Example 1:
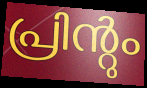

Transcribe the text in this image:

പ്രിന്റും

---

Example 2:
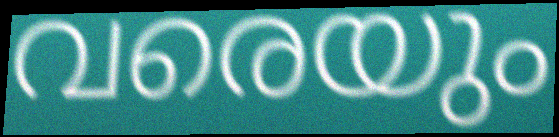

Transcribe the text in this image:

വരെയും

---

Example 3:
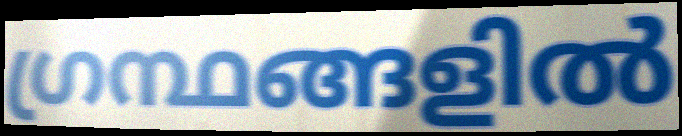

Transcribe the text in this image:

ഗ്രന്ഥങ്ങളിൽ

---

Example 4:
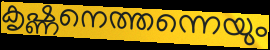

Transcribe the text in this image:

കൃഷ്ണനെത്തന്നെയും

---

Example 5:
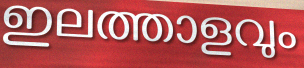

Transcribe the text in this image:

ഇലത്താളവും